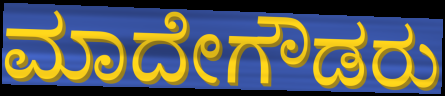
ಮಾದೇಗೌಡರು